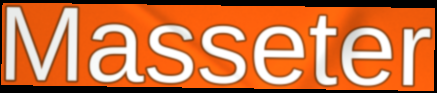
Masseter